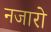
नजारो